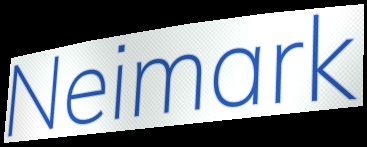
Neimark